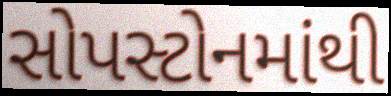
સોપસ્ટોનમાંથી